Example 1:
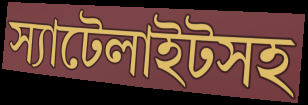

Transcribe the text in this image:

স্যাটেলাইটসহ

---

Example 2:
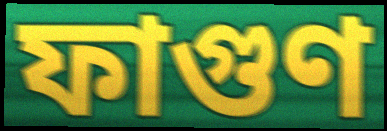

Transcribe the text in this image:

ফাগুণ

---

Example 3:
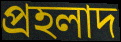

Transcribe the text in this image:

প্রহলাদ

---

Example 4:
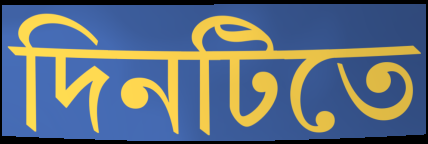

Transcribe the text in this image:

দিনটিতে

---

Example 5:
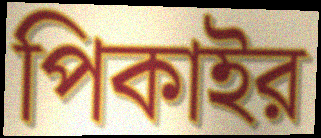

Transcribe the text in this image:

পিকাইর